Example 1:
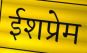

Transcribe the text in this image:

ईशप्रेम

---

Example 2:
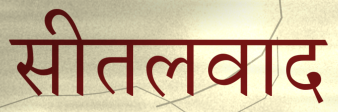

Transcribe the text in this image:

सीतलवाद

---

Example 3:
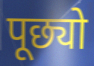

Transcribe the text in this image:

पूछ्यो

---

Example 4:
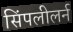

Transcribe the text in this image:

सिंपलीलर्न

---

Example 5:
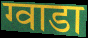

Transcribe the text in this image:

ग्वाडा